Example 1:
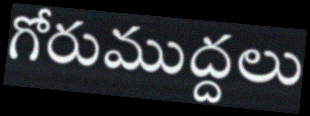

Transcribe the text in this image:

గోరుముద్దలు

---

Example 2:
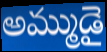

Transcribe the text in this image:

అమ్ముడై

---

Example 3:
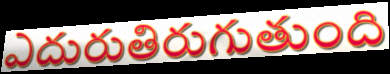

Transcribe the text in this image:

ఎదురుతిరుగుతుంది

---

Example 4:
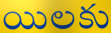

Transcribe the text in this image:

యిలకు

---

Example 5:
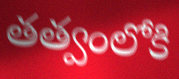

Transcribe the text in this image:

తత్వంలోకి